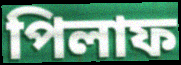
পিলাফ